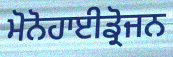
ਮੋਨੋਹਾਈਡ੍ਰੋਜਨ